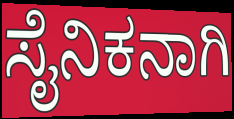
ಸೈನಿಕನಾಗಿ